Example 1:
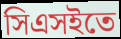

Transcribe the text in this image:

সিএসইতে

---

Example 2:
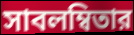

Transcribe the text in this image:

সাবলম্বিতার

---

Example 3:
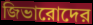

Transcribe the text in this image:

জিভারোদের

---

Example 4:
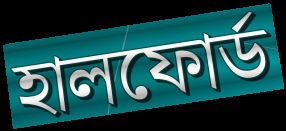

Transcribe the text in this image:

হালফোর্ড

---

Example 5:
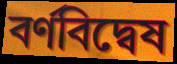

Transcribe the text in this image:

বর্ণবিদ্বেষ